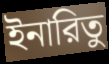
ইনারিতু